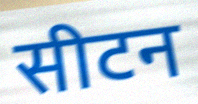
सीटन